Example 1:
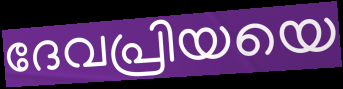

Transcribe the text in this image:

ദേവപ്രിയയെ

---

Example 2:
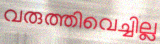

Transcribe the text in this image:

വരുത്തിവെച്ചില്ല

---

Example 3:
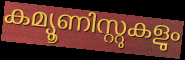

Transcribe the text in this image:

കമ്യൂണിസ്റ്റുകളും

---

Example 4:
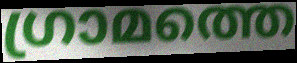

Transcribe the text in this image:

ഗ്രാമത്തെ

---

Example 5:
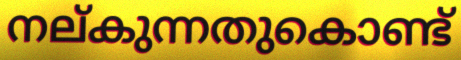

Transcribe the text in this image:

നല്കുന്നതുകൊണ്ട്